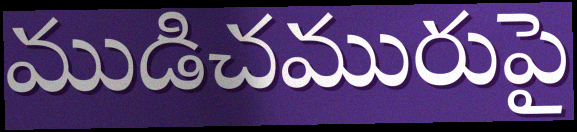
ముడిచమురుపై